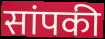
सांपकी